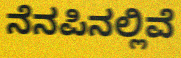
ನೆನಪಿನಲ್ಲಿವೆ